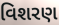
વિશરણ